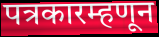
पत्रकारम्हणून